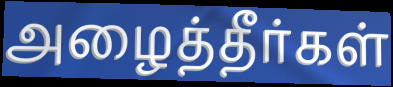
அழைத்தீர்கள்